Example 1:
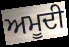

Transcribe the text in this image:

ਅਮੂਦੀ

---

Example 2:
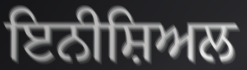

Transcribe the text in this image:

ਇਨੀਸ਼ਿਅਲ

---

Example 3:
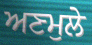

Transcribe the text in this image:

ਅਣਮੁਲੇ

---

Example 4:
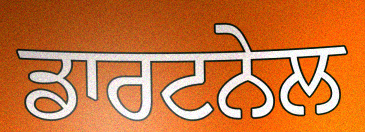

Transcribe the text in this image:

ਡਾਰਟਨੇਲ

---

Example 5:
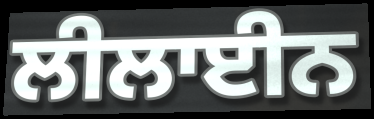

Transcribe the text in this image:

ਲੀਲਾਈਨ